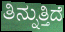
ತಿನ್ನುತ್ತಿದೆ